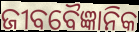
ଜୀବବୈଜ୍ଞାନିକ